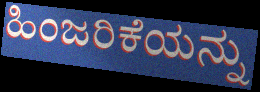
ಹಿಂಜರಿಕೆಯನ್ನು